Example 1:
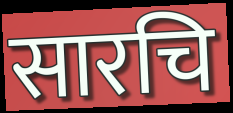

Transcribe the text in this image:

सारचि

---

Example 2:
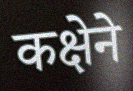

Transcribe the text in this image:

कक्षेने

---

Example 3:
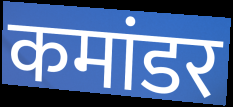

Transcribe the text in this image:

कमांडर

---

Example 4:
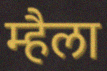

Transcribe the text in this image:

म्हैला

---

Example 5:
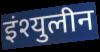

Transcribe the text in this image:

इंश्युलीन